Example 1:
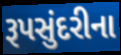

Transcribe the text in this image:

રૂપસુંદરીના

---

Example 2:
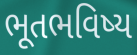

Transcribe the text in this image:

ભૂતભવિષ્ય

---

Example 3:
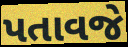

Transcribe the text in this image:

પતાવજે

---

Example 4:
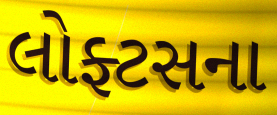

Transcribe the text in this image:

લોફ્ટસના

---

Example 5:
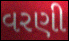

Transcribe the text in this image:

વરણી